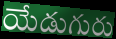
యేడుగురు